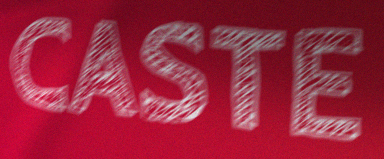
CASTE